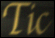
Tic